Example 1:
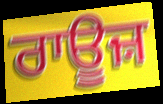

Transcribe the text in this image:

ਰਾਊਜ਼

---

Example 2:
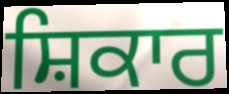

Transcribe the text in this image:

ਸ਼ਿਕਾਰ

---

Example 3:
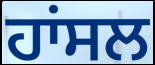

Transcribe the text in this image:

ਹਾਂਸਲ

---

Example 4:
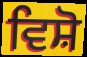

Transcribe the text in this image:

ਵਿਸ਼ੋ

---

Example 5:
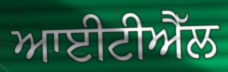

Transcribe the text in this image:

ਆਈਟੀਐੱਲ